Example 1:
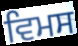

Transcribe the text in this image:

ਵਿਮਸ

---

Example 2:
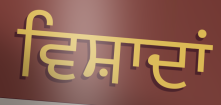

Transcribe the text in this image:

ਵਿਸ਼ਾਦਾਂ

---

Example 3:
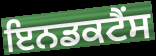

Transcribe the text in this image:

ਇਨਡਕਟੈਂਸ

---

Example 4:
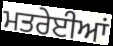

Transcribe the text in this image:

ਮਤਰੇਈਆਂ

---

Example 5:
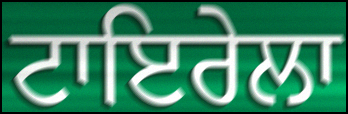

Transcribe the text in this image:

ਟਾਇਰੇਲਾ